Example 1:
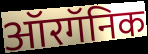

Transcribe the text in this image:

ऑरगॅनिक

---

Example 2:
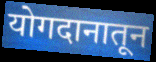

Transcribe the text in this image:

योगदानातून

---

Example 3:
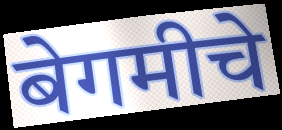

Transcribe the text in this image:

बेगमीचे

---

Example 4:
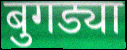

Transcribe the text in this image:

बुगड्या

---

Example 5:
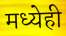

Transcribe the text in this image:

मध्येही